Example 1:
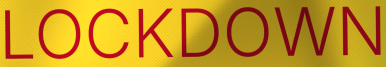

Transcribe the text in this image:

LOCKDOWN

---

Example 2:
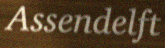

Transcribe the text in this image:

Assendelft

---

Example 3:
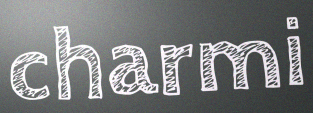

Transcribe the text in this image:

charmi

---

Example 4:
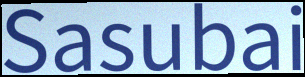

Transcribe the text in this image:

Sasubai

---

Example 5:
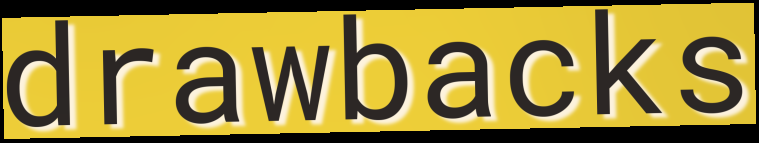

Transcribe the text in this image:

drawbacks